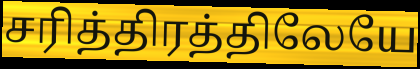
சரித்திரத்திலேயே